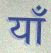
याँ